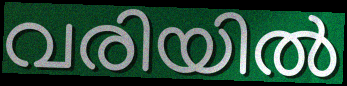
വരിയിൽ